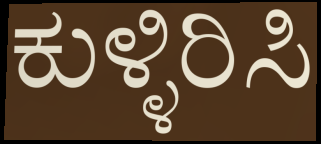
ಕುಳ್ಳಿರಿಸಿ